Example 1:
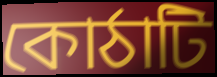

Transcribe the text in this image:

কোঠাটি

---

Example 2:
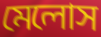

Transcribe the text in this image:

মেলোস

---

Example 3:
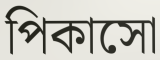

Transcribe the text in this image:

পিকাসো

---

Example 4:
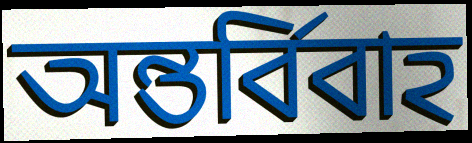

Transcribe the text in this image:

অন্তর্বিবাহ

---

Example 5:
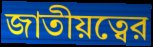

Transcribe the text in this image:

জাতীয়ত্বের